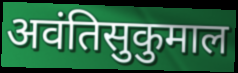
अवंतिसुकुमाल